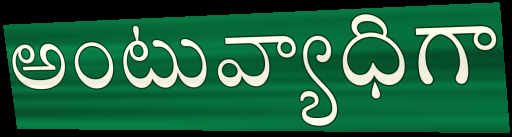
అంటువ్యాధిగా